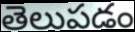
తెలుపడం